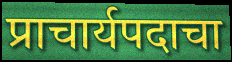
प्राचार्यपदाचा